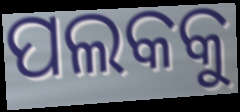
ପଲକକୁ